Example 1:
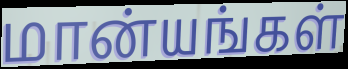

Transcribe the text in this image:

மான்யங்கள்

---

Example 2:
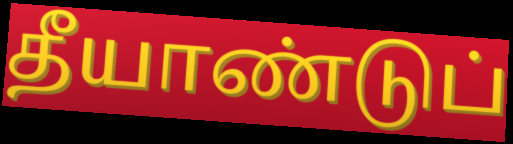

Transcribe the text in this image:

தீயாண்டுப்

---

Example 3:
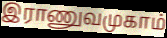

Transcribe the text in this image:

இராணுவமுகாம்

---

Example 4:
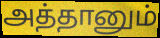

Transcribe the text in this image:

அத்தானும்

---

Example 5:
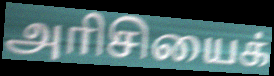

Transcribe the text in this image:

அரிசியைக்